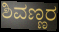
ಶಿವಣ್ಣರ